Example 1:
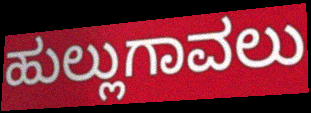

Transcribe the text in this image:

ಹುಲ್ಲುಗಾವಲು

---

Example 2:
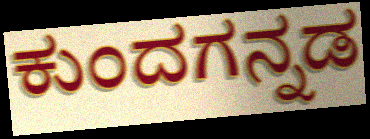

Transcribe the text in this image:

ಕುಂದಗನ್ನಡ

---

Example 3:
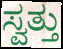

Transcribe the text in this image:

ಸ್ವತ್ತು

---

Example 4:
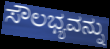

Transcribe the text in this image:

ಸೌಲಭ್ಯವನ್ನು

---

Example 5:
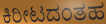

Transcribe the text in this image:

ಕಿರೀಟದಂತಹ